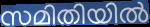
സമിതിയിൽ